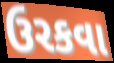
ઉરકવા